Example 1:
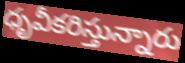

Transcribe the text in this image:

ధృవీకరిస్తున్నారు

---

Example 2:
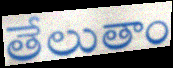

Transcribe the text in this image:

తేలుతాం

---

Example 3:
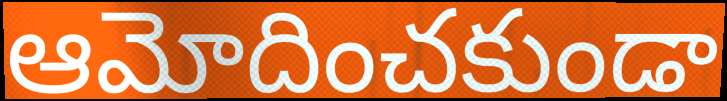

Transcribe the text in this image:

ఆమోదించకుండా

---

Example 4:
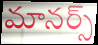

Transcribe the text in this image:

మానర్స్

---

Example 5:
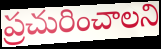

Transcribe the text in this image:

ప్రచురించాలని